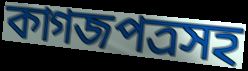
কাগজপত্রসহ